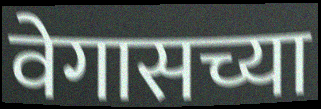
वेगासच्या